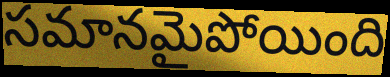
సమానమైపోయింది